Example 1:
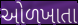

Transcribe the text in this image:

ઓળખાતા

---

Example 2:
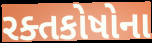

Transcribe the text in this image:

રક્તકોષોના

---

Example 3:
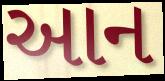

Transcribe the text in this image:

આન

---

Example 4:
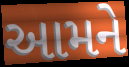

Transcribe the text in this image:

આમને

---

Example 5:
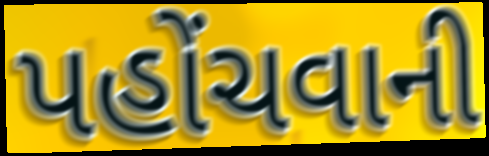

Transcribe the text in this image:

પહોંચવાની